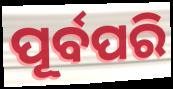
ପୂର୍ବପରି